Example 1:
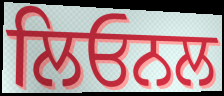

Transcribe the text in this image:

ਲਿਓਨਲ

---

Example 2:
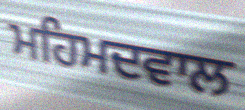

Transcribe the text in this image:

ਮਹਿਮਦਵਾਲ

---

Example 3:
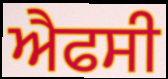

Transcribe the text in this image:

ਐਫਸੀ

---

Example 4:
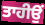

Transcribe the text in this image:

ਤਾਹੀਉਂ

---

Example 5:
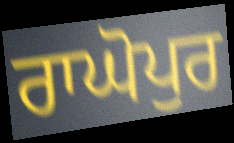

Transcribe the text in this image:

ਰਾਘੋਪੁਰ